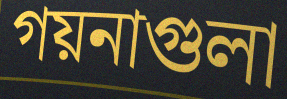
গয়নাগুলা